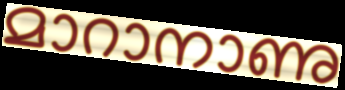
മാറാനാണു